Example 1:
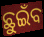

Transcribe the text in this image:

ଛୁଇଁବ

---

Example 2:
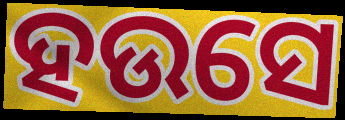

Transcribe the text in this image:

ହଉସେ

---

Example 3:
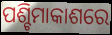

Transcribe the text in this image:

ପଶ୍ଚିମାକାଶରେ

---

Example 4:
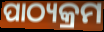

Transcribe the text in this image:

ପାଠ୍ୟକ୍ରମ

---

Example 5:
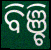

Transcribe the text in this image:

ବିଞ୍ଚି